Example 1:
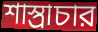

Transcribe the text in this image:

শাস্ত্রাচার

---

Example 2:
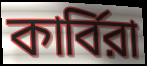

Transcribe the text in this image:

কার্বিরা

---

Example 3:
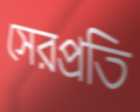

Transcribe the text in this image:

সেরপ্রতি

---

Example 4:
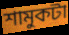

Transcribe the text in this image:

শামুকটা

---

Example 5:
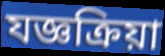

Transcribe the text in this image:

যজ্ঞক্রিয়া